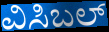
ವಿಸಿಬಲ್